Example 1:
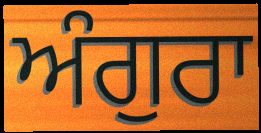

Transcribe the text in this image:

ਅੰਗੁਰਾ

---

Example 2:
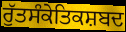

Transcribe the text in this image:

ਰੁੱਤਸੰਕੇਤਿਕਸ਼ਬਦ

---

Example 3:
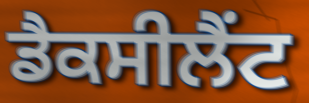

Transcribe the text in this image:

ਡੈਕਸੀਲੈਂਟ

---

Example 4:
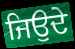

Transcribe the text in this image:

ਜਿਉਦੇ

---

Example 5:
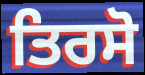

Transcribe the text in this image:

ਤਿਰਸੋ